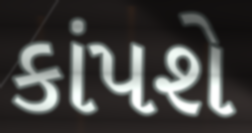
કાંપશે